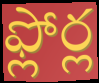
ఫ్లోర్ల